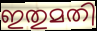
ഇതുമതി